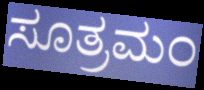
ಸೂತ್ರಮಂ